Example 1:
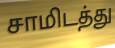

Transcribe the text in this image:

சாமிடத்து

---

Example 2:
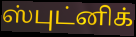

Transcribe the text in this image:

ஸ்புட்னிக்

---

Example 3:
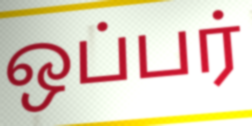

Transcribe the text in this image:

ஒப்பர்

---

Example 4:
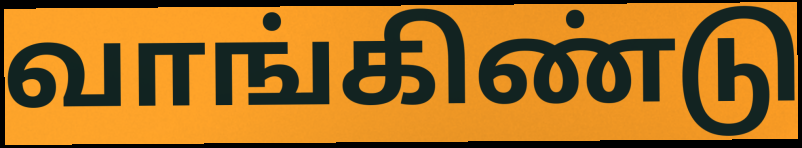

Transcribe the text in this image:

வாங்கிண்டு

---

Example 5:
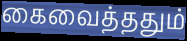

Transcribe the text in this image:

கைவைத்ததும்